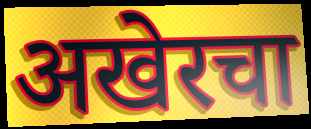
अखेरचा